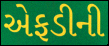
એફડીની